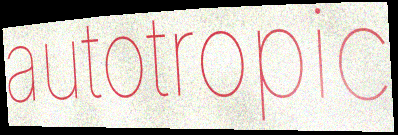
autotropic